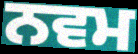
ਨਵਮ